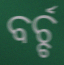
ବର୍ଚ୍ଚ